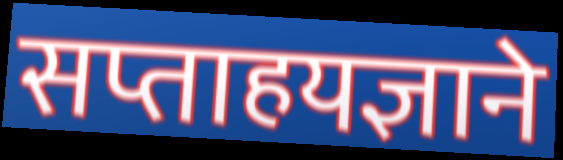
सप्ताहयज्ञाने